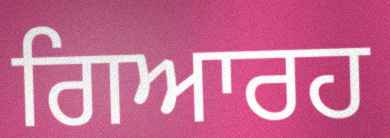
ਗਿਆਰਹ